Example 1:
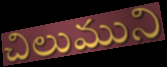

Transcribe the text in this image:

చిలుముని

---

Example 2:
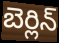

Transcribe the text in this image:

బెర్లిన్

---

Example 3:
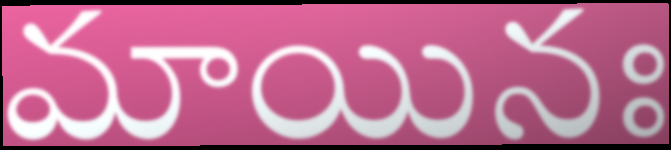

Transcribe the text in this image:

మాయినః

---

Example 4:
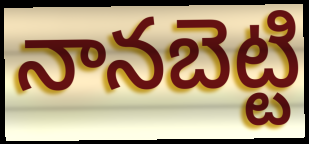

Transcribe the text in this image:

నానబెట్టి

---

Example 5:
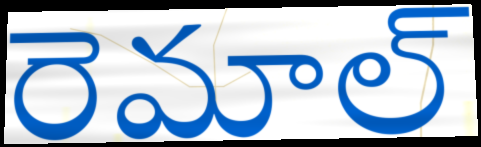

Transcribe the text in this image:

రెమాల్